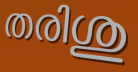
തരിശു